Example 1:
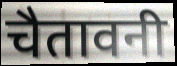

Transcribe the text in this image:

चैतावनी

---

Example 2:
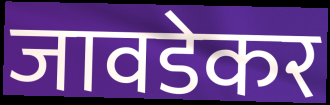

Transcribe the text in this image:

जावडेकर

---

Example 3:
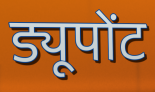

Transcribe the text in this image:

ड्यूपोंट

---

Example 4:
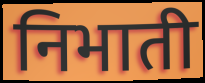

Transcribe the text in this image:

निभाती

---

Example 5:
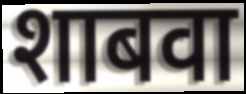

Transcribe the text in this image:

शाबवा